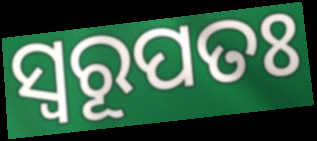
ସ୍ଵରୂପତଃ